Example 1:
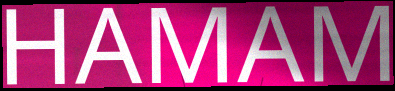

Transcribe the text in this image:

HAMAM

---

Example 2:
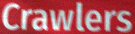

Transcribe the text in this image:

Crawlers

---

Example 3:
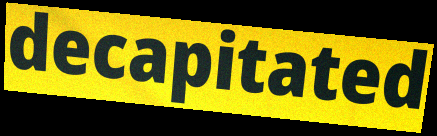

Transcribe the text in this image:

decapitated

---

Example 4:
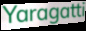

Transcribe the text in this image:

Yaragatti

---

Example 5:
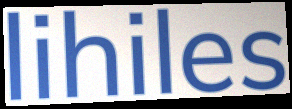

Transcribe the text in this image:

lihiles